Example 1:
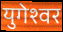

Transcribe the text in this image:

युगेश्वर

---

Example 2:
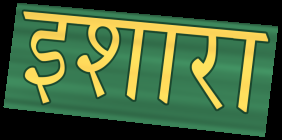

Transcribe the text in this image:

इशारा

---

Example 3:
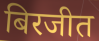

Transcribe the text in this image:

बिरजीत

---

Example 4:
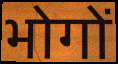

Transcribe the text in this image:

भोगों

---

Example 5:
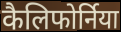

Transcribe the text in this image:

कैलिफोर्निया